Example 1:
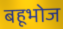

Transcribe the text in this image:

बहूभोज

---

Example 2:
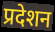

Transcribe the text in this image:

प्रदेशन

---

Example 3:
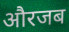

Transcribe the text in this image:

औरजब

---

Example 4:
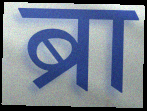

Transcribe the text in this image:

ब्रा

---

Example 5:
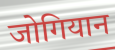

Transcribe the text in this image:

जोगियान